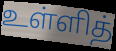
உள்ளித்